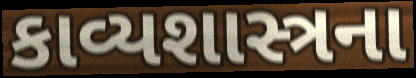
કાવ્યશાસ્ત્રના